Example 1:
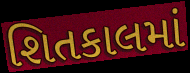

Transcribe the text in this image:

શિતકાલમાં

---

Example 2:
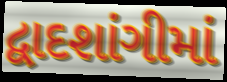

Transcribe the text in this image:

દ્વાદશાંગીમાં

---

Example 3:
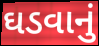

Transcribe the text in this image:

ઘડવાનું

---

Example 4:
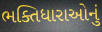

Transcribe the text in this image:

ભક્તિધારાઓનું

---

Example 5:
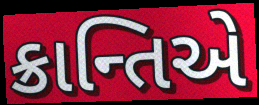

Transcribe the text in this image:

ક્રાન્તિએ